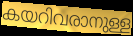
കയറിവരാനുള്ള